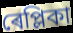
ৰেপ্লিকা